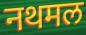
नथमल